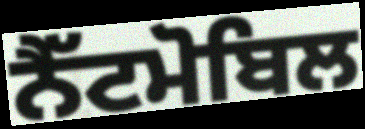
ਨੈੱਟਮੋਬਿਲ